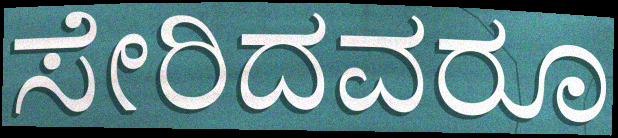
ಸೇರಿದವರೂ